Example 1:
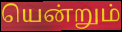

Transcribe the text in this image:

யென்றும்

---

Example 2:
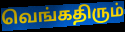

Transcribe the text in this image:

வெங்கதிரும்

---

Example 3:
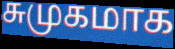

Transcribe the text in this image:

சுமுகமாக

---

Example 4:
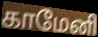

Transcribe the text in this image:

காமேனி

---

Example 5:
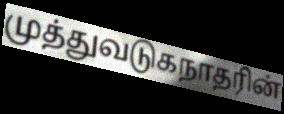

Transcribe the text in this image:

முத்துவடுகநாதரின்